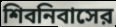
শিবনিবাসের